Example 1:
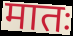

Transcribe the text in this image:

मातः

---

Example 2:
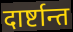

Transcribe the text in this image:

दार्ष्टान्त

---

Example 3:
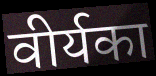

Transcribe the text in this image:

वीर्यका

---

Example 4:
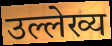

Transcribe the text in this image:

उल्लेख्य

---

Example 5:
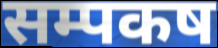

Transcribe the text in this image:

सम्पकष